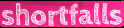
shortfalls